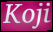
Koji